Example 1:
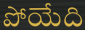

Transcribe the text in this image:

పోయేది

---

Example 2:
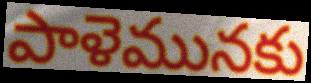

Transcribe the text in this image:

పాళెమునకు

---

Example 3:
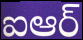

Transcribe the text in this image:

ఐఆర్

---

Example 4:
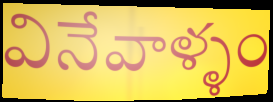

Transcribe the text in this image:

వినేవాళ్ళం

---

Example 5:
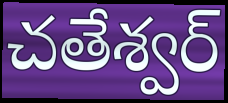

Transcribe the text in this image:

చతేశ్వర్